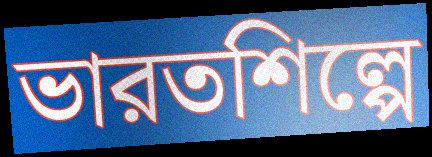
ভারতশিল্পে